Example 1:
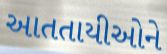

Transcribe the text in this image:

આતતાયીઓને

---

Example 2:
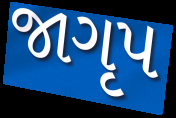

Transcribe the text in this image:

જાગૃપ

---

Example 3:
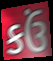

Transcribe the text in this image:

કઉં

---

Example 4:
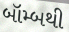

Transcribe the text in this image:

બૉમ્બથી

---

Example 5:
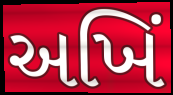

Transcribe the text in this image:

અખિં